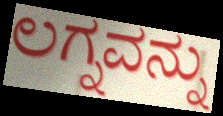
ಲಗ್ನವನ್ನು